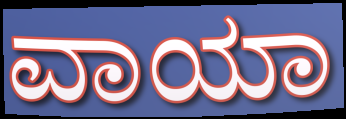
ವಾಯಾ